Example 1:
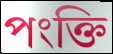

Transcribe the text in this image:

পংক্তি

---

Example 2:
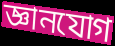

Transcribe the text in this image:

জ্ঞানযোগ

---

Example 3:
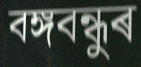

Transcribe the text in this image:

বঙ্গবন্ধুৰ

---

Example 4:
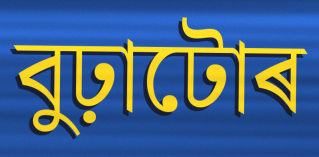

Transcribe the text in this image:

বুঢ়াটোৰ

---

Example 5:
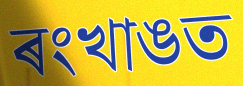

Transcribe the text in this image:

ৰংখাঙত